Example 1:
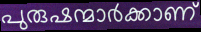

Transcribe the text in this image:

പുരുഷന്മാർക്കാണ്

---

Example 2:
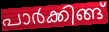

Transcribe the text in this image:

പാർക്കിങ്ങ്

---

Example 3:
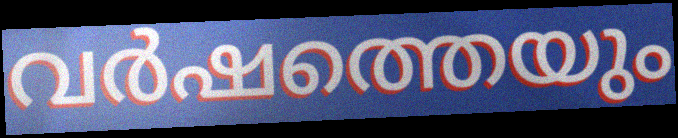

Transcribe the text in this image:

വർഷത്തെയും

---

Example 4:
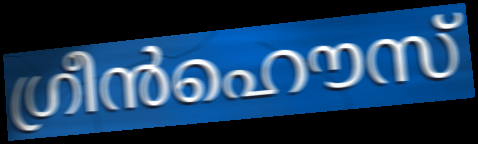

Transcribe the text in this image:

ഗ്രീൻഹൌസ്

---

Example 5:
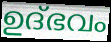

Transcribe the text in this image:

ഉദ്ഭവം